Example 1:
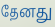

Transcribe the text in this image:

தேனது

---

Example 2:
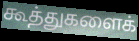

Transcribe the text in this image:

கூத்துகளைக்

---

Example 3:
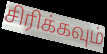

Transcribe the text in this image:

சிரிக்கவும்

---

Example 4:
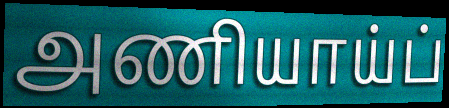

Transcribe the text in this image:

அணியாய்ப்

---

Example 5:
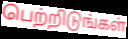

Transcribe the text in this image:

பெற்றிடுங்கள்